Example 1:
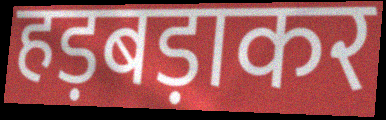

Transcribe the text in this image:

हड़बड़ाकर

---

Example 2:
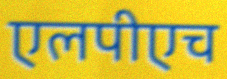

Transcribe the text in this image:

एलपीएच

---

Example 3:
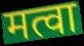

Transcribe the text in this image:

मत्वा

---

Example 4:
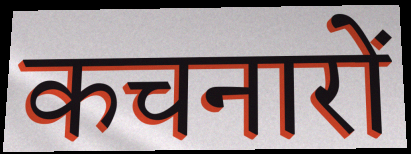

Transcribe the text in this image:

कचनारों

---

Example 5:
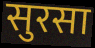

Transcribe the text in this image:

सुरसा